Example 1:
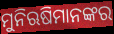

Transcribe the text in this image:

ମୁନିଋଷିମାନଙ୍କର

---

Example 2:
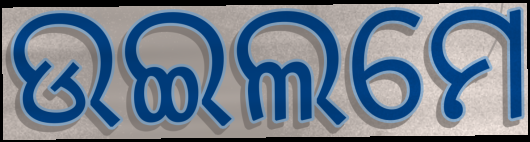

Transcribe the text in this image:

ଉଇଲମେ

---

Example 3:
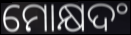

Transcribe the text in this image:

ମୋକ୍ଷଦଂ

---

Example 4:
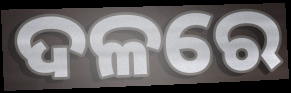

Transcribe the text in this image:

ଦଳରେ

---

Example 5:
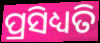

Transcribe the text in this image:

ପ୍ରସିଧ୍ୟତି